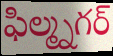
ఫిల్మ్నగర్